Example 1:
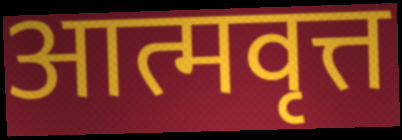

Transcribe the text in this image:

आत्मवृत्त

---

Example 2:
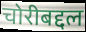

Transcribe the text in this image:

चोरीबद्दल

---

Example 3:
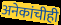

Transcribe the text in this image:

अनेकांचीही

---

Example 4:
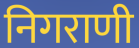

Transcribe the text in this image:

निगराणी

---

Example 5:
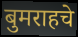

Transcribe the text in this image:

बुमराहचे